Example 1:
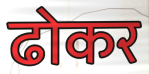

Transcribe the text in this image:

ढोकर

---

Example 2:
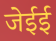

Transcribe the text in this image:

जेईई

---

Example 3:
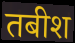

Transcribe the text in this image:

तबीश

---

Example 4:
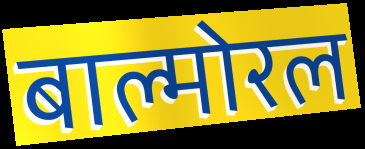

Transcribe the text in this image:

बाल्‍मोरल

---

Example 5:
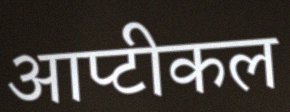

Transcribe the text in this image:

आप्टीकल